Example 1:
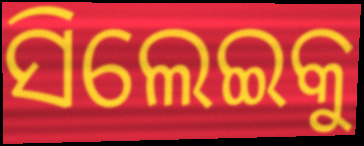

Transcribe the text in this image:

ସିଲେଇକୁ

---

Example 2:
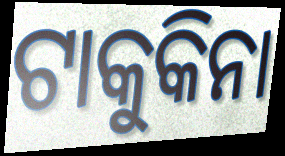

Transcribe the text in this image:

ଟାକୁକିନା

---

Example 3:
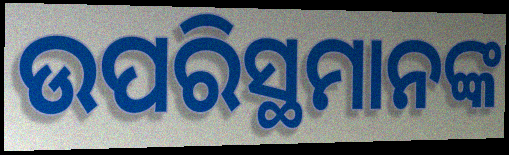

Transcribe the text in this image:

ଉପରିସ୍ଥମାନଙ୍କ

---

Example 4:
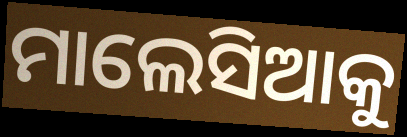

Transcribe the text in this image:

ମାଲେସିଆକୁ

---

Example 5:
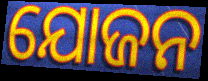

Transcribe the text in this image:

ଯୋଜନ